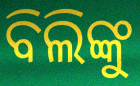
ବିଲିଙ୍କୁ